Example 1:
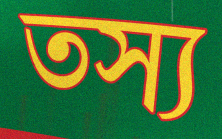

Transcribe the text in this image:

তস্য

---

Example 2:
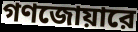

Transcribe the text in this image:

গণজোয়ারে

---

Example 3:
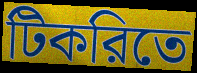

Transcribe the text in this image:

টিকরিতে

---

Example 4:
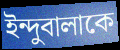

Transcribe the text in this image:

ইন্দুবালাকে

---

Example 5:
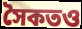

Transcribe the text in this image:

সৈকতও